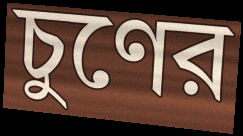
চুণের